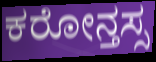
ಕರೋನ್ತಸ್ಸ